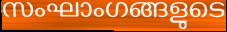
സംഘാംഗങ്ങളുടെ